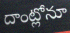
దాంట్లోనూ